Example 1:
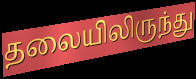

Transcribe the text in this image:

தலையிலிருந்து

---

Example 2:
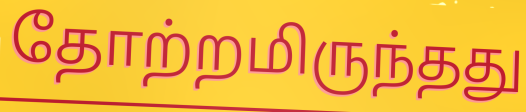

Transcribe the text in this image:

தோற்றமிருந்தது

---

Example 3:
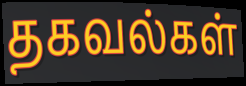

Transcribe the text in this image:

தகவல்கள்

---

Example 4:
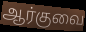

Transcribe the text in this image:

ஆர்குவை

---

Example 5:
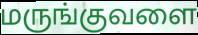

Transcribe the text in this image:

மருங்குவளை